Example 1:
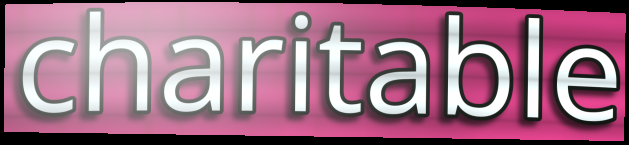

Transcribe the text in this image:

charitable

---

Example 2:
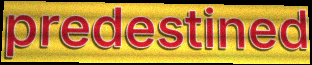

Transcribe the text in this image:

predestined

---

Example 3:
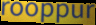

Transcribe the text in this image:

rooppur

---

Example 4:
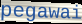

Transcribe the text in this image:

pegawai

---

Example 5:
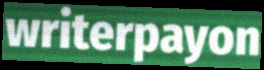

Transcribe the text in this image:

writerpayon